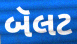
બૅલટ